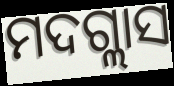
ମଦଗ୍ଲାସ